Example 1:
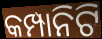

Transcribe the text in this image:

କମ୍ପାନିଟି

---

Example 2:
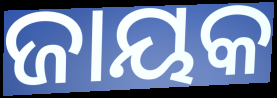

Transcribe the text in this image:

ଜାୟକ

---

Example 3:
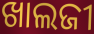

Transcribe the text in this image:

ଖାଲଜୀ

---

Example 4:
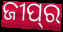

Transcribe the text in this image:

ଜୀପ୍‌ର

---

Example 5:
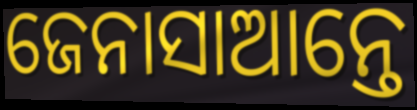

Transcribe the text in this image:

ଜେନାସାଆନ୍ତେ